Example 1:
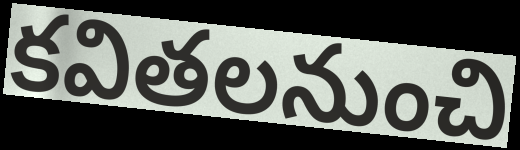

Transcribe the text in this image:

కవితలనుంచి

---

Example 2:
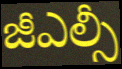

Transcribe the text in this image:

జీఎల్సీ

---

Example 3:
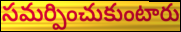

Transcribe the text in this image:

సమర్పించుకుంటారు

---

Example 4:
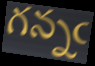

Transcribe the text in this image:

గన్నఁ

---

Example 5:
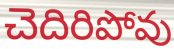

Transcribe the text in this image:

చెదిరిపోవు